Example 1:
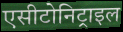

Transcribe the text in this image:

एसीटोनिट्राइल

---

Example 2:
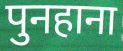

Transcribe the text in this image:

पुनहाना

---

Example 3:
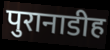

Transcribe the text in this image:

पुरानाडीह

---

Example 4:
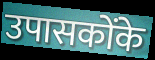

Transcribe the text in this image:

उपासकोंके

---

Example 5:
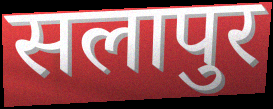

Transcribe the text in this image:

सलापुर